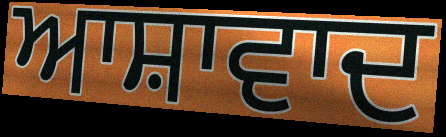
ਆਸ਼ਾਵਾਦ